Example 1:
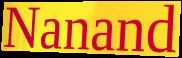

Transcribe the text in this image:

Nanand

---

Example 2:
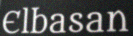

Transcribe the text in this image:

Elbasan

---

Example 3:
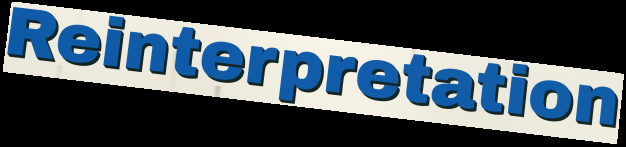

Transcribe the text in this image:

Reinterpretation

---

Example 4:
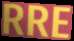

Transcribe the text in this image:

RRE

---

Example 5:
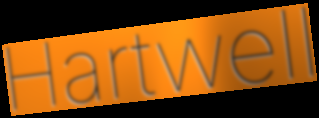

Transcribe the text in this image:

Hartwell